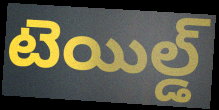
టెయిల్డ్